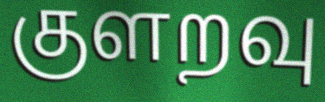
குளறவு